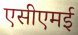
एसीएमई